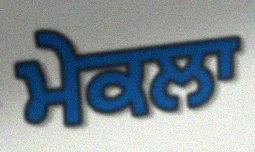
ਮੇਕਲਾ